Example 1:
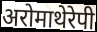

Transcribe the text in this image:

अरोमाथेरेपी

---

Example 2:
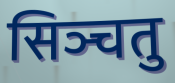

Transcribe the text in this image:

सिञ्चतु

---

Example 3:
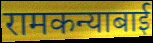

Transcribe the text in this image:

रामकन्याबाई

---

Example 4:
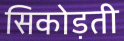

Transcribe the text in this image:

सिकोड़ती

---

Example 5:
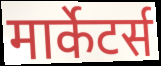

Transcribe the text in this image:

मार्केटर्स